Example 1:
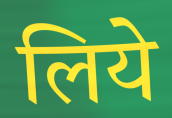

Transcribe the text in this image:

लिये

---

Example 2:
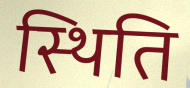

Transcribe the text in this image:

स्थिति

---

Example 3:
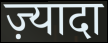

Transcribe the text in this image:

ज़्यादा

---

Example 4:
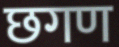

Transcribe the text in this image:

छगण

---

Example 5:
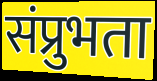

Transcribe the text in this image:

संप्रुभता